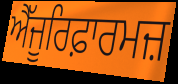
ਐੱਜੂਰਿਫ਼ਾਰਮਜ਼